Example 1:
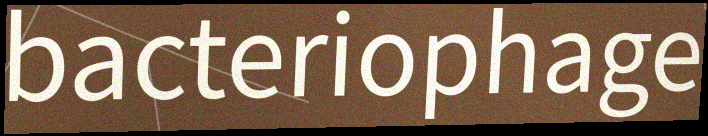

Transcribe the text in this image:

bacteriophage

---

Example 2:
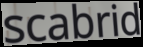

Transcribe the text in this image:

scabrid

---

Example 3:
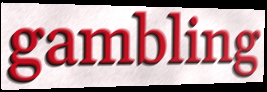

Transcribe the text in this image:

gambling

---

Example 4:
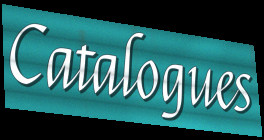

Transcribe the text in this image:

Catalogues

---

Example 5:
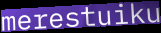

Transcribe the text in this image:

merestuiku